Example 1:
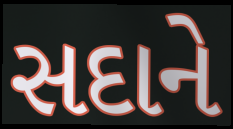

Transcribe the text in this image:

સદાને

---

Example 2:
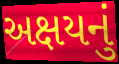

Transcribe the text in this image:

અક્ષયનું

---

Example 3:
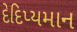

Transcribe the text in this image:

દેદિપ્યમાન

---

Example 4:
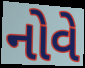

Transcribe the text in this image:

નોવે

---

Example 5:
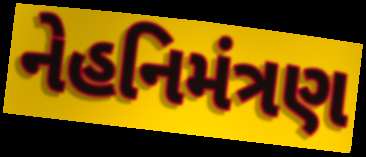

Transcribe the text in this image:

નેહનિમંત્રણ